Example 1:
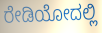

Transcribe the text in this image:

ರೇಡಿಯೋದಲ್ಲಿ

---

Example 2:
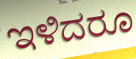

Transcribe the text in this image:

ಇಳಿದರೂ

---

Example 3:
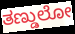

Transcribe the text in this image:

ತಣ್ಡುಲೋ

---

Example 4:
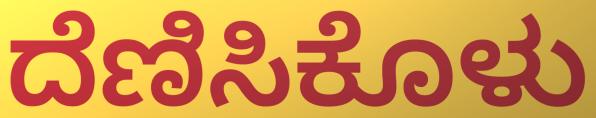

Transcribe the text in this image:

ದೆಣಿಸಿಕೊಳು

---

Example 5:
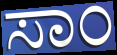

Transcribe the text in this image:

ಸಾಂ